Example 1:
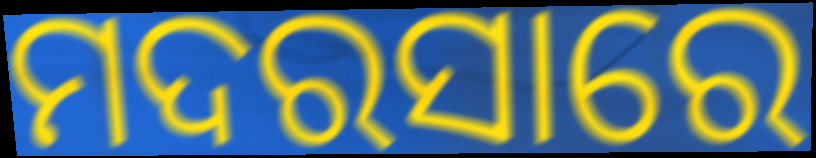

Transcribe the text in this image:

ମଦରସାରେ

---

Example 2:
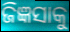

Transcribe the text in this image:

ଜିଜ୍ଞସାକୁ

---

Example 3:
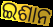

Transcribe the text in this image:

ଇଶାନ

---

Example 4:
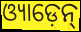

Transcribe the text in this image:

ଓ୍ୟାଡ଼େନ୍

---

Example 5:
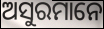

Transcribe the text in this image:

ଅସୁରମାନେ